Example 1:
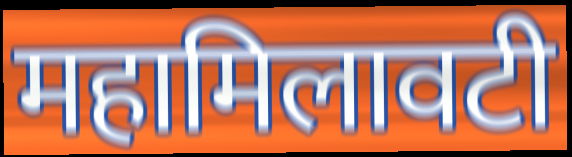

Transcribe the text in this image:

महामिलावटी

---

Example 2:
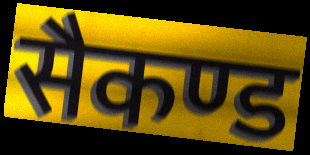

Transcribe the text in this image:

सैकण्ड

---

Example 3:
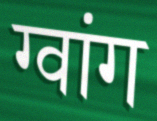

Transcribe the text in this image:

ग्वांग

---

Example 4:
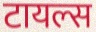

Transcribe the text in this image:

टायल्स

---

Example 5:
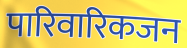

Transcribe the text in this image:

पारिवारिकजन